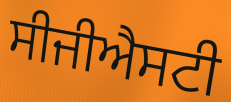
ਸੀਜੀਐਸਟੀ